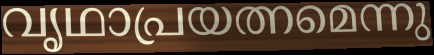
വൃഥാപ്രയത്നമെന്നു